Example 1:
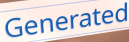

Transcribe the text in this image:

Generated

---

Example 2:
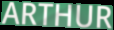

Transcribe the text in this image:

ARTHUR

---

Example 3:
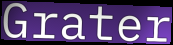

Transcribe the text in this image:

Grater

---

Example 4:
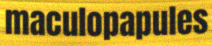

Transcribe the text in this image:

maculopapules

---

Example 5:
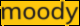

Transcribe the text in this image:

moody